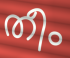
തീം